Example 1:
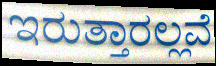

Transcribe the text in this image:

ಇರುತ್ತಾರಲ್ಲವೆ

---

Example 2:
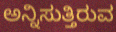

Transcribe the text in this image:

ಅನ್ನಿಸುತ್ತಿರುವ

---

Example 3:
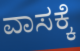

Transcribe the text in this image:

ವಾಸಕ್ಕೆ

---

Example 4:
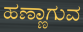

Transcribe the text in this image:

ಹಣ್ಣಾಗುವ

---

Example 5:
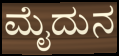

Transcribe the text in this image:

ಮೈದುನ